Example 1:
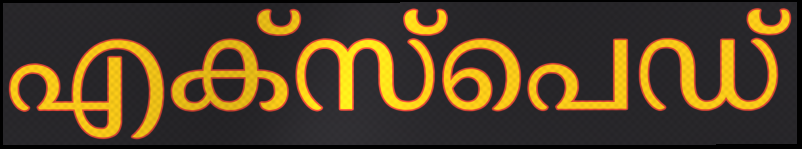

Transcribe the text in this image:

എക്സ്പെഡ്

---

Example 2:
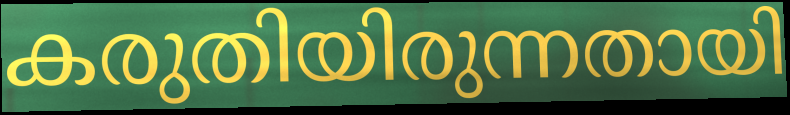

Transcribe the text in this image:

കരുതിയിരുന്നതായി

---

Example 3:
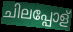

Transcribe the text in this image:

ചിലപ്പോള്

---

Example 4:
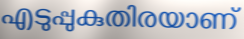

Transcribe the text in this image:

എടുപ്പുകുതിരയാണ്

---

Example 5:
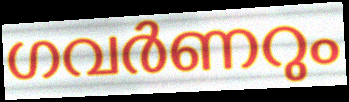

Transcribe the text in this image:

ഗവർണറും